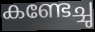
കണ്ടേച്ചു